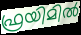
ഫ്രയിമിൽ